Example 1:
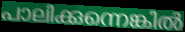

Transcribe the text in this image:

പാലിക്കുന്നെങ്കിൽ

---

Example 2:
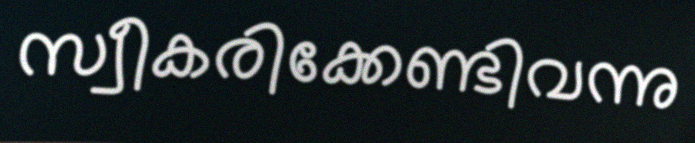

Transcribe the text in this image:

സ്വീകരിക്കേണ്ടിവന്നു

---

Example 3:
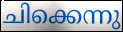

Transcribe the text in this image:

ചിക്കെന്നു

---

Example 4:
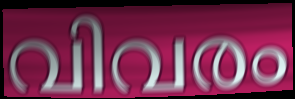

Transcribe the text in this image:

വിവരം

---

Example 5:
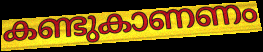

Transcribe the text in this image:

കണ്ടുകാണണം